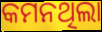
କମନଥିଲା